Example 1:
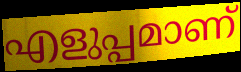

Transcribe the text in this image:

എളുപ്പമാണ്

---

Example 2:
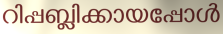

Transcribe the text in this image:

റിപ്പബ്ലിക്കായപ്പോൾ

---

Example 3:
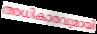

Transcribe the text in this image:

അധികാരവുമായി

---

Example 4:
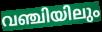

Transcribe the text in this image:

വഞ്ചിയിലും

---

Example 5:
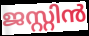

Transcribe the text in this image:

ജസ്റ്റിൻ